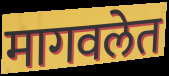
मागवलेत